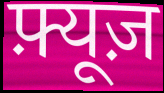
फ़्यूज़